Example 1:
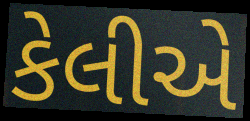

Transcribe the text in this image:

કેલીએ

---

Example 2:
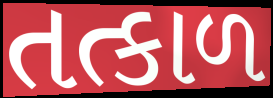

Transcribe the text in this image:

તત્કાળ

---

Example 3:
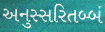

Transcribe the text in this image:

અનુસ્સરિતબ્બં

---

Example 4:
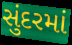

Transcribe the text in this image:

સુંદરમાં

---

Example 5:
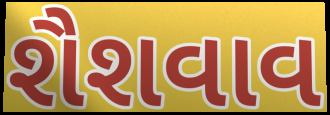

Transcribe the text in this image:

શૈશવાવ